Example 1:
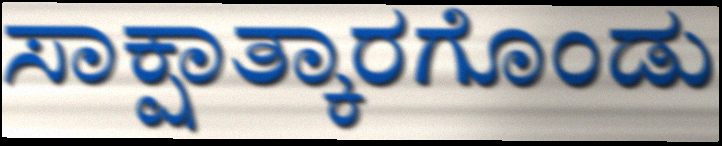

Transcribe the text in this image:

ಸಾಕ್ಷಾತ್ಕಾರಗೊಂಡು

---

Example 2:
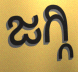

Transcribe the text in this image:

ಜಗ್ಗಿ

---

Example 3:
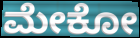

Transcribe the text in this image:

ಮೇಕೋ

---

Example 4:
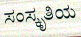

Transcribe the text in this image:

ಸಂಸ್ಕೃತಿಯ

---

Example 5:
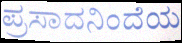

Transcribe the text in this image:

ಪ್ರಸಾದನಿಂದೆಯ